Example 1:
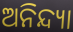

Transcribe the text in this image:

ଅନିନ୍ଦ୍ୟା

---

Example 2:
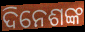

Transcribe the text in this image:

ଦିନେଶଙ୍କ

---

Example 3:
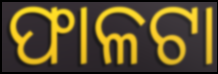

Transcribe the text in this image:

ଫାଳଟା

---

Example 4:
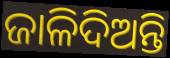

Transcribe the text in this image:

ଜାଳିଦିଅନ୍ତି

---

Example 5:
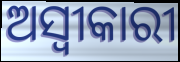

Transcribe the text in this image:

ଅସ୍ୱୀକାରୀ